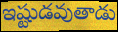
ఇష్టుడవుతాడు